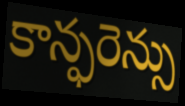
కాన్ఫరెన్సు